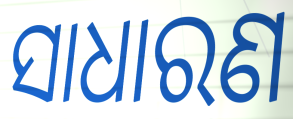
ସାଧାରଣ